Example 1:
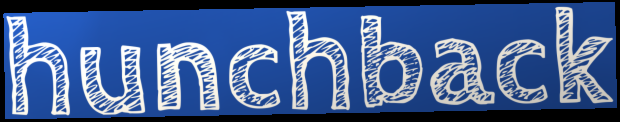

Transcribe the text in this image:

hunchback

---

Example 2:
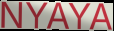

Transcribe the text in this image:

NYAYA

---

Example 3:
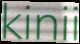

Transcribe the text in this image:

kinii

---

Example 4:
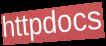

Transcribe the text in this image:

httpdocs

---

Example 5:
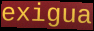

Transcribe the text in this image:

exigua